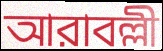
আরাবল্লী